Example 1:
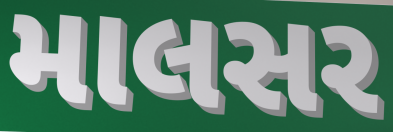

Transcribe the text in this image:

માલસર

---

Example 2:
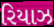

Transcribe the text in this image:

રિયાઝ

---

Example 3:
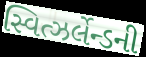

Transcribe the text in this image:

સ્વિત્ઝર્લેન્ડની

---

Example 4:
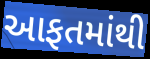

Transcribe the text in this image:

આફતમાંથી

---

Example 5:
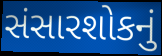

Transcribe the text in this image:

સંસારશોકનું